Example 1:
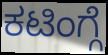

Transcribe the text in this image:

ಕಟಿಂಗ್ಗೆ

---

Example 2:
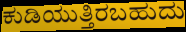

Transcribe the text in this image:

ಕುಡಿಯುತ್ತಿರಬಹುದು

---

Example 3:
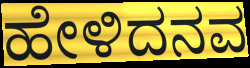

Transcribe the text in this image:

ಹೇಳಿದನವ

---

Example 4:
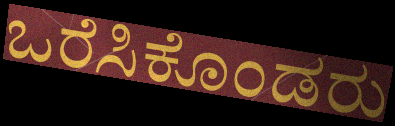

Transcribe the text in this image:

ಒರೆಸಿಕೊಂಡರು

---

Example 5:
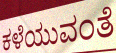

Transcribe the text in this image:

ಕಳೆಯುವಂತೆ